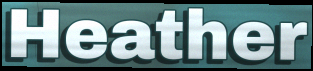
Heather